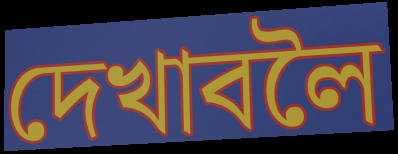
দেখাবলৈ